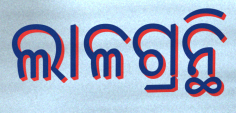
ଲାଳଗ୍ରନ୍ଥି